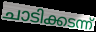
ചാടിക്കടന്ന്